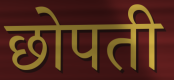
छोपती